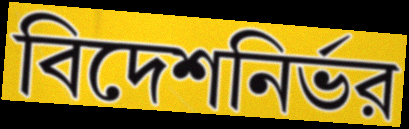
বিদেশনির্ভর